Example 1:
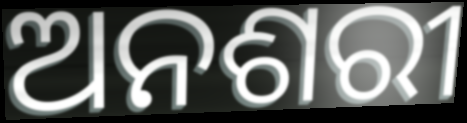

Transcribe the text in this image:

ଅନଶରୀ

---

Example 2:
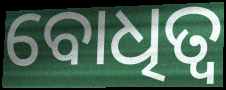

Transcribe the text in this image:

ବୋଧିତ୍ୱ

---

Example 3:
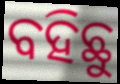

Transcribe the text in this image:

ବହିଛୁ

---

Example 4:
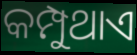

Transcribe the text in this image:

କମ୍ପୁଥାଏ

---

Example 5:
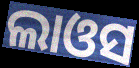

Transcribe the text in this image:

ଲାଓସ